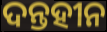
ଦନ୍ତହୀନ